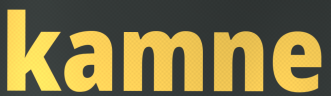
kamne